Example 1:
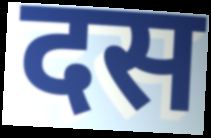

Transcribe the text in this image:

दस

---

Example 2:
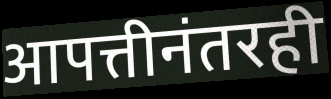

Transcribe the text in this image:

आपत्तीनंतरही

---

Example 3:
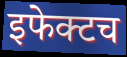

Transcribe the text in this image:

इफेक्टच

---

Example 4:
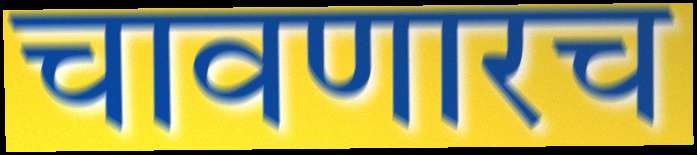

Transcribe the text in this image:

चावणारच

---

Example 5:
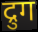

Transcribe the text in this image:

द्रुग